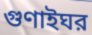
গুণাইঘর